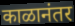
काळानंतर